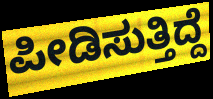
ಪೀಡಿಸುತ್ತಿದ್ದೆ